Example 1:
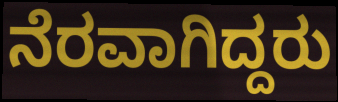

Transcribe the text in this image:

ನೆರವಾಗಿದ್ದರು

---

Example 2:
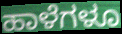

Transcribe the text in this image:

ಹಾಳೆಗಳೂ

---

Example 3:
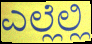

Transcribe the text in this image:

ಎಲ್ಲೆಲ್ಲಿ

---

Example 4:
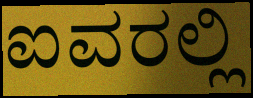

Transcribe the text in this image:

ಐವರಲ್ಲಿ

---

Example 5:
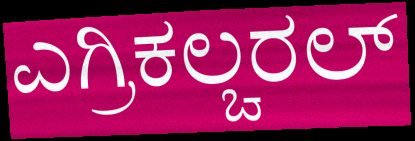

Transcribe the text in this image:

ಎಗ್ರಿಕಲ್ಚರಲ್